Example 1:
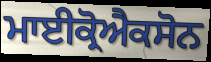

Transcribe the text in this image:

ਮਾਈਕ੍ਰੋਐਕਸੋਨ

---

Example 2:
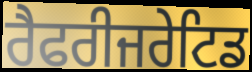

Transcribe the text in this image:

ਰੈਫਰੀਜਰੇਟਿਡ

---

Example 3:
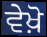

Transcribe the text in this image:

ਵੇਖ਼ੋ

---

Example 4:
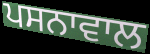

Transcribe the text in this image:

ਪਸਨਾਵਾਲ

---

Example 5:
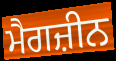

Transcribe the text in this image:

ਮੈਗਜ਼ੀਨ